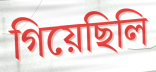
গিয়েছিলি